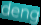
deng